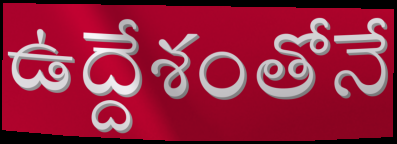
ఉద్దేశంతోనే